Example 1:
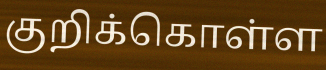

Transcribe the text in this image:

குறிக்கொள்ள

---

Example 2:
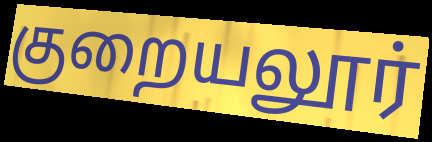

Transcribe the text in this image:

குறையலூர்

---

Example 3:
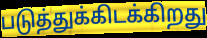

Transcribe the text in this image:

படுத்துக்கிடக்கிறது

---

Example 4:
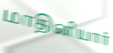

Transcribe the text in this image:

மாதினியார்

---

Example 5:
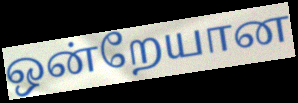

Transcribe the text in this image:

ஒன்றேயான